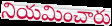
నియమించారు